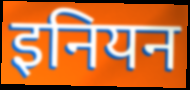
इनियन